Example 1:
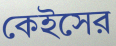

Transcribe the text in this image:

কেইসের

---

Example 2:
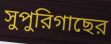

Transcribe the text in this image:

সুপুরিগাছের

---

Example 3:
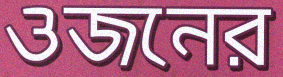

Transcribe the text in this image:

ওজনের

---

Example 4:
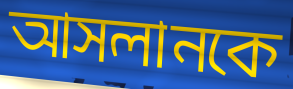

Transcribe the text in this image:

আসলানকে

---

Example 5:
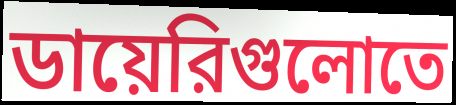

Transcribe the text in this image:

ডায়েরিগুলোতে